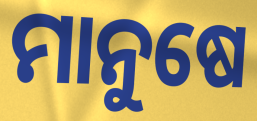
ମାନୁଷେ